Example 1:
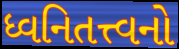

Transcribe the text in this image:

ધ્વનિતત્ત્વનો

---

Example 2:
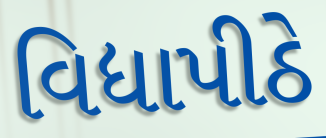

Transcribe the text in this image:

વિદ્યાપીઠે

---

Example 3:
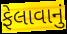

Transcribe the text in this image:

ફેલાવાનું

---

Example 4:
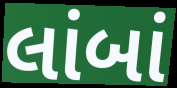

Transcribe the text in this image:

લાંબાં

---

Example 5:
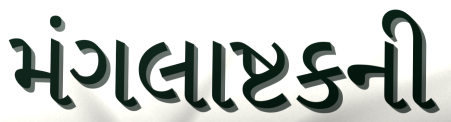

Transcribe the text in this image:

મંગલાષ્ટકની